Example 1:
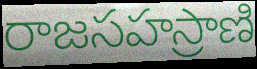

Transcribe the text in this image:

రాజసహస్రాణి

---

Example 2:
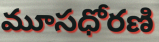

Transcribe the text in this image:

మూసధోరణి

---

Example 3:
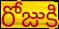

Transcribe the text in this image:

రోజుకి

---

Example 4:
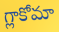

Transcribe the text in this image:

గ్లాకోమా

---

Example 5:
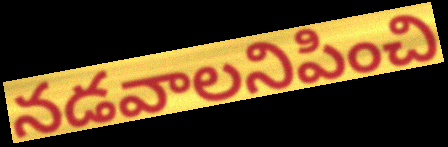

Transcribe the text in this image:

నడవాలనిపించి